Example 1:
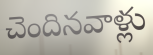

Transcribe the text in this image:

చెందినవాళ్లు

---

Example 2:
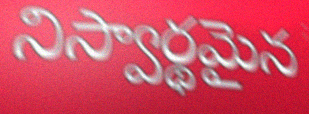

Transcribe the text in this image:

నిస్వార్థమైన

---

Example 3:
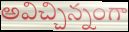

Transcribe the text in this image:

అవిచ్చిన్నంగా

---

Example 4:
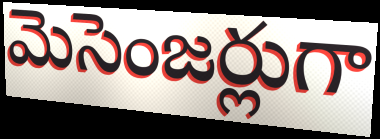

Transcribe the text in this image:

మెసెంజర్లుగా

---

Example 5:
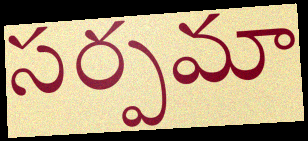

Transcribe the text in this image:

సర్పమా